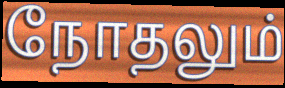
நோதலும்